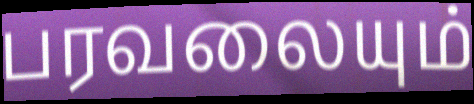
பரவலையும்